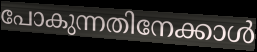
പോകുന്നതിനേക്കാൾ